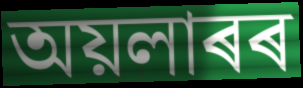
অয়লাৰৰ